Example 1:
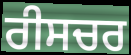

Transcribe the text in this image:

ਰੀਸਚਰ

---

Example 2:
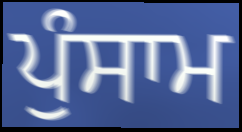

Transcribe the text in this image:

ਪੁੰਸਾਮ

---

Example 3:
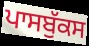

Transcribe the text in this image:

ਪਾਸਬੁੱਕਸ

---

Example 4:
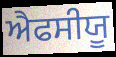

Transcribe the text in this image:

ਐਫਸੀਯੂ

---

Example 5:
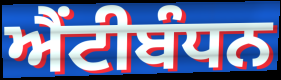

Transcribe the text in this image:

ਐਂਟੀਬੰਧਨ